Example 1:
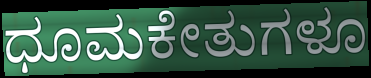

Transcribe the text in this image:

ಧೂಮಕೇತುಗಳೂ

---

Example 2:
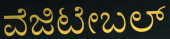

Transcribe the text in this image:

ವೆಜಿಟೇಬಲ್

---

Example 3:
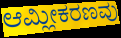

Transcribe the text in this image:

ಆಮ್ಲೀಕರಣವು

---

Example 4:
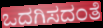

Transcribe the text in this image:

ಒದಗಿಸದಂತೆ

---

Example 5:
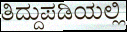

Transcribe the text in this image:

ತಿದ್ದುಪಡಿಯಲ್ಲಿ